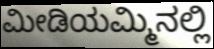
ಮೀಡಿಯಮ್ಮಿನಲ್ಲಿ